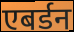
एबर्डन